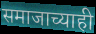
समाजाच्याही